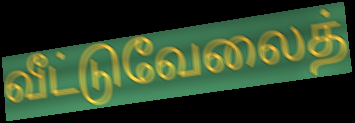
வீட்டுவேலைத்